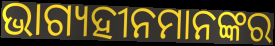
ଭାଗ୍ୟହୀନମାନଙ୍କର